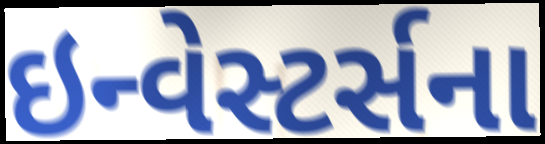
ઇન્વેસ્ટર્સના